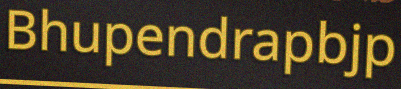
Bhupendrapbjp